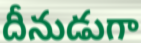
దీనుడుగా